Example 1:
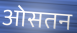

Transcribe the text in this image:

ओसतन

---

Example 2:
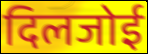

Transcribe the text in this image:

दिलजोई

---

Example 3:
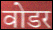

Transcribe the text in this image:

वोडर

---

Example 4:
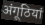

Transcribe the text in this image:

अंगूठियां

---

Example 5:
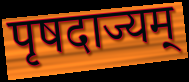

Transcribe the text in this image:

पृषदाज्यम्